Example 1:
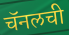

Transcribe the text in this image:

चॅनलची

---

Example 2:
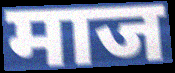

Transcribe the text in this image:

माज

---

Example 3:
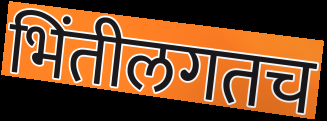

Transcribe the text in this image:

भिंतीलगतच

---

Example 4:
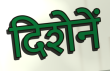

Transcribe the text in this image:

दिशेनें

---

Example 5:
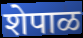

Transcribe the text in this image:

शेपाळ